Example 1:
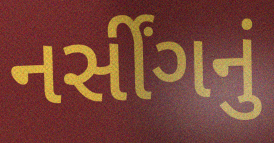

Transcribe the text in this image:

નર્સીંગનું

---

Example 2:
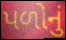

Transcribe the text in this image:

પળોનું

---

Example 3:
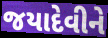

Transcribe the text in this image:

જયાદેવીને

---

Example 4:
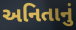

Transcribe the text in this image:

અનિતાનું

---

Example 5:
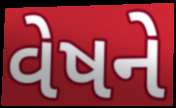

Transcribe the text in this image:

વેષને